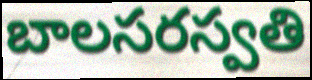
బాలసరస్వతి